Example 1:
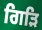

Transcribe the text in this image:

ਗਿੜਿ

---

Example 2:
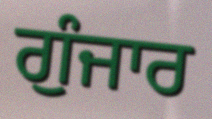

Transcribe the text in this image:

ਗੁੰਜਾਰ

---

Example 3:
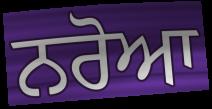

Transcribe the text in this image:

ਨਰੋਆ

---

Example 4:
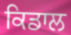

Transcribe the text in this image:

ਕਿਡਾਲ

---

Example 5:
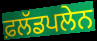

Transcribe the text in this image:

ਫ਼ਲੱਡਪਲੇਨ